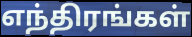
எந்திரங்கள்